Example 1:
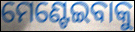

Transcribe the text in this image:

ମେଣ୍ଟେଇବାକୁ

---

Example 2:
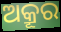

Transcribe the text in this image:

ଅକ୍ରୂର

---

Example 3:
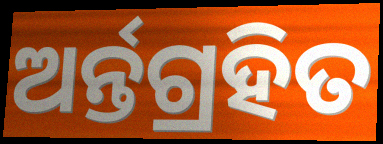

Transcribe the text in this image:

ଅର୍ନ୍ତଗ୍ରହିତ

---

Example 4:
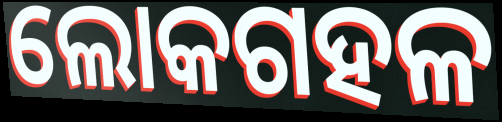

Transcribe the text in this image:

ଲୋକଗହଳ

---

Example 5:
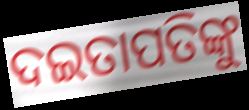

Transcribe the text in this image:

ଦଇତାପତିଙ୍କୁ